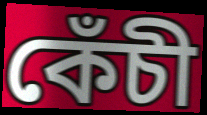
কেঁচী